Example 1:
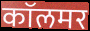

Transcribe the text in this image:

कॉलमर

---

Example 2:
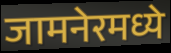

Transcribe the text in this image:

जामनेरमध्ये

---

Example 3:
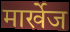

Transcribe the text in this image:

मार्खेज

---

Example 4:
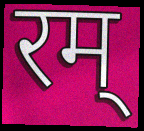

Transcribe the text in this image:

रम्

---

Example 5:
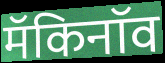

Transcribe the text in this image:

मॅकिनॉव